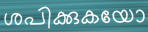
ശപിക്കുകയോ